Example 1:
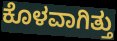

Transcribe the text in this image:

ಕೊಳವಾಗಿತ್ತು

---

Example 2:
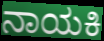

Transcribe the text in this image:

ನಾಯಕಿ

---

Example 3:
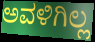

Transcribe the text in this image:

ಅವಳಿಗಿಲ್ಲ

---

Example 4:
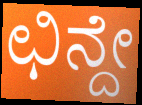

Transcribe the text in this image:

ಛಿನ್ದೇ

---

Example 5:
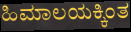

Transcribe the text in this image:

ಹಿಮಾಲಯಕ್ಕಿಂತ